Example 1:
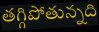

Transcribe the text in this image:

తగ్గిపోతున్నది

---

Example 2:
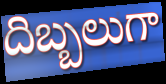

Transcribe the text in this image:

దిబ్బలుగా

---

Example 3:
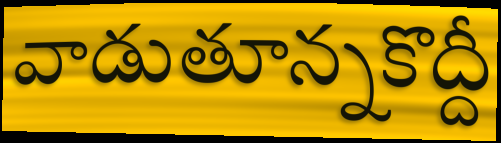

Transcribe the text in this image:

వాడుతూన్నకొద్దీ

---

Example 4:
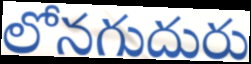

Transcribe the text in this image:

లోనగుదురు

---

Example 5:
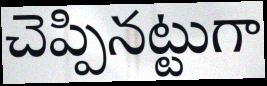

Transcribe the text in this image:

చెప్పినట్టుగా